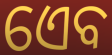
ଏେବ